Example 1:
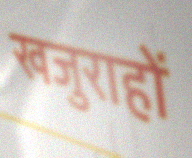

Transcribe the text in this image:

खजुराहों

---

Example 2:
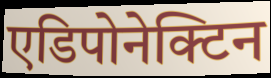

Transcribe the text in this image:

एडिपोनेक्टिन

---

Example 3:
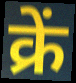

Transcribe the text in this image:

क्रें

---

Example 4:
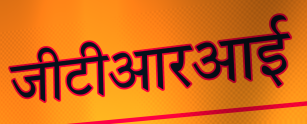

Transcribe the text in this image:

जीटीआरआई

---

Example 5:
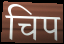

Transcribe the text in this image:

चिप